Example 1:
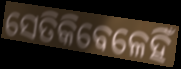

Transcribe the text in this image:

ସେତିକିବେଳେହିଁ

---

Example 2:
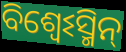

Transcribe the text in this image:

ବିଶ୍ଵେଽସ୍ମିନ୍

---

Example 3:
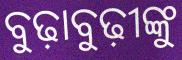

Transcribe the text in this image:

ବୁଢ଼ାବୁଢ଼ୀଙ୍କୁ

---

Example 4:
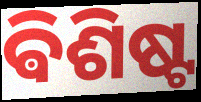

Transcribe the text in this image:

ଵିଶିଷ୍ଟ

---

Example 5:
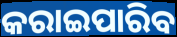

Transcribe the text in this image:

କରାଇପାରିବ